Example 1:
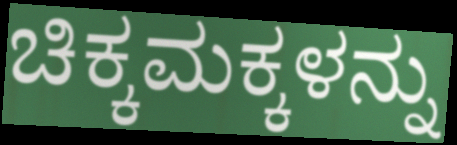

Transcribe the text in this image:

ಚಿಕ್ಕಮಕ್ಕಳನ್ನು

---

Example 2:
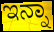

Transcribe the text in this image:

ಇನ್ನಾ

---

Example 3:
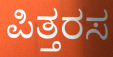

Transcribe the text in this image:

ಪಿತ್ತರಸ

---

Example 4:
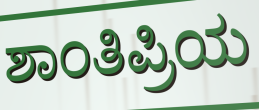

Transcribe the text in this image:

ಶಾಂತಿಪ್ರಿಯ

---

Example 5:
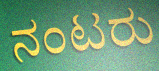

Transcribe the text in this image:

ನಂಟರು